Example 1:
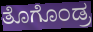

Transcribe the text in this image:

ತೊಗೊಂಡ್ರ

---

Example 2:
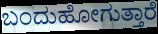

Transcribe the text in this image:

ಬಂದುಹೋಗುತ್ತಾರೆ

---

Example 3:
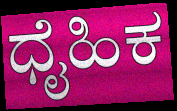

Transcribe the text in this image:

ಧೈಹಿಕ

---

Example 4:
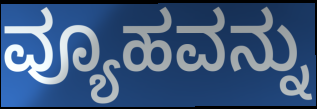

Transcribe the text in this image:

ವ್ಯೂಹವನ್ನು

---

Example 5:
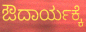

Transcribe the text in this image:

ಔದಾರ್ಯಕ್ಕೆ